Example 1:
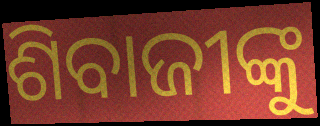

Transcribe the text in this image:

ଶିବାଜୀଙ୍କୁ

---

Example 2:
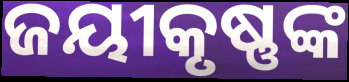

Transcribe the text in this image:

ଜୟୀକୃଷ୍ଣଙ୍କ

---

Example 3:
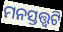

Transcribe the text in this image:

ମନସ୍ତତ୍ତ୍ୱଟି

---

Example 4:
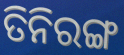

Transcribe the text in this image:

ତିନିରଙ୍ଗ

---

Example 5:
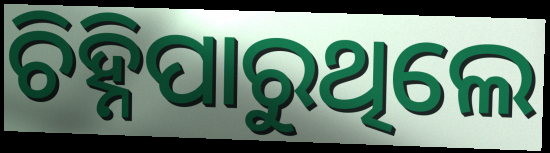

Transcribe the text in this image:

ଚିହ୍ନିପାରୁଥିଲେ